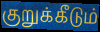
குறுக்கீடும்